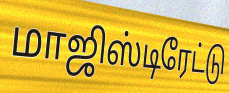
மாஜிஸ்டிரேட்டு